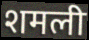
शमली